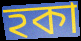
হকা